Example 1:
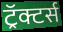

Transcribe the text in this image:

ट्रॅक्टर्स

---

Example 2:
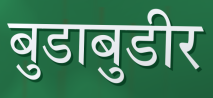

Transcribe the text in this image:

बुडाबुडीर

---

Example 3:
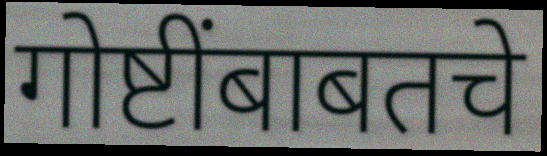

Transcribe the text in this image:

गोष्टींबाबतचे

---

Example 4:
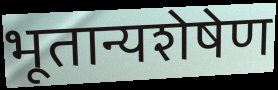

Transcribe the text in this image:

भूतान्यशेषेण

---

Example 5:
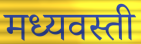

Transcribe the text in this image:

मध्यवस्ती